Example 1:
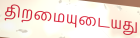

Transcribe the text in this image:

திறமையுடையது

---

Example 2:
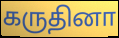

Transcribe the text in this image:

கருதினா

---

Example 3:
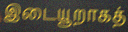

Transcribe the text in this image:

இடையூறாகத்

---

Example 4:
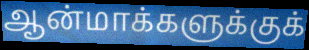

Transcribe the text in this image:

ஆன்மாக்களுக்குக்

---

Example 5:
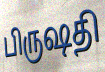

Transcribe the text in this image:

பிருஷதி